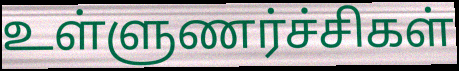
உள்ளுணர்ச்சிகள்